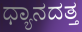
ಧ್ಯಾನದತ್ತ